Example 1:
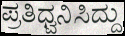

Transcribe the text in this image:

ಪ್ರತಿಧ್ವನಿಸಿದ್ದು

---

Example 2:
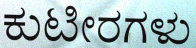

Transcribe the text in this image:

ಕುಟೀರಗಳು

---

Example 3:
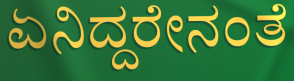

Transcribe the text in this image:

ಏನಿದ್ದರೇನಂತೆ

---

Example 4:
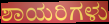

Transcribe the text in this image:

ಶಾಯರಿಗಳು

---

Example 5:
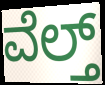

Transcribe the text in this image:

ವೆಲ್ತ್